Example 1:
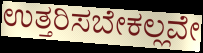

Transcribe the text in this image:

ಉತ್ತರಿಸಬೇಕಲ್ಲವೇ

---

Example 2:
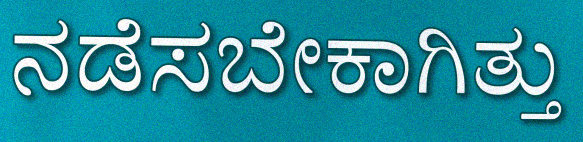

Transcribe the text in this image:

ನಡೆಸಬೇಕಾಗಿತ್ತು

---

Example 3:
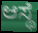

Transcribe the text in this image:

ಆಸ್ಥೆ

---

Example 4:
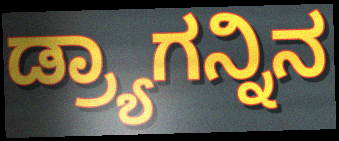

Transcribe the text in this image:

ಡ್ರ್ಯಾಗನ್ನಿನ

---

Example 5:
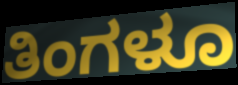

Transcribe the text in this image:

ತಿಂಗಳೂ